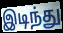
இடிந்து